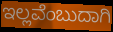
ಇಲ್ಲವೆಂಬುದಾಗಿ